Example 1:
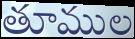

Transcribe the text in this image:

తూముల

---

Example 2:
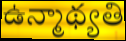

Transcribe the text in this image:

ఉన్మాథ్యతి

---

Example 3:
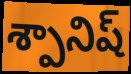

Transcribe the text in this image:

శ్పానిష్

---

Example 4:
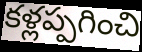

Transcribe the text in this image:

కళ్లప్పగించి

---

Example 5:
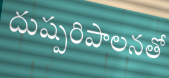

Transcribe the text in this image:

దుష్పరిపాలనతో